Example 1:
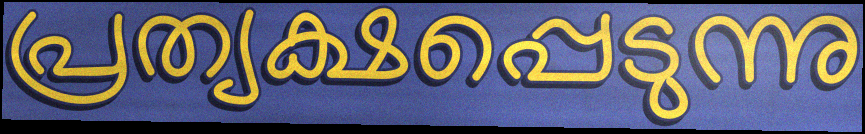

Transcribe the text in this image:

പ്രത്യക്ഷപ്പെടുന്നു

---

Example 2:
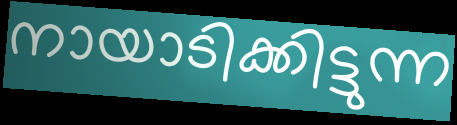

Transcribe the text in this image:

നായാടിക്കിട്ടുന്ന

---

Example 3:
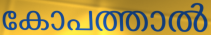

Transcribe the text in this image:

കോപത്താൽ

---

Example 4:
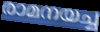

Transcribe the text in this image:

രാമനയച്ച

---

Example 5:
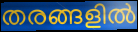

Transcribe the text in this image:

തരങ്ങളിൽ